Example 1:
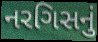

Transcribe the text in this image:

નરગિસનું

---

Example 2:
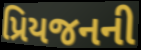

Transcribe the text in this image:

પ્રિયજનની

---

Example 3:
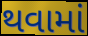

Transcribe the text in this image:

થવામાં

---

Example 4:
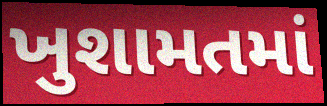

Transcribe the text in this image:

ખુશામતમાં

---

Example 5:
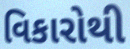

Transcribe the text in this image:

વિકારોથી